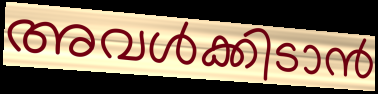
അവൾക്കിടാൻ